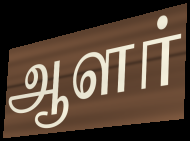
ஆளர்